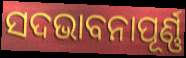
ସଦଭାବନାପୂର୍ଣ୍ଣ